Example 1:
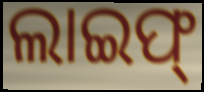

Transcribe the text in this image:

ଲାଇଫ୍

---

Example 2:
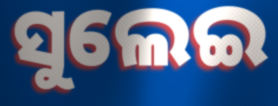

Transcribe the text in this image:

ସୁଲେଇ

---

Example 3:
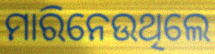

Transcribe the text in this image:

ମାରିନେଉଥିଲେ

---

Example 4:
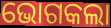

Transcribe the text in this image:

ଭୋଗକଲା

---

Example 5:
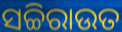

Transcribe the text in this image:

ସଚ୍ଚିରାଉତ